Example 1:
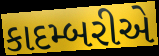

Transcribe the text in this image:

કાદમ્બરીએ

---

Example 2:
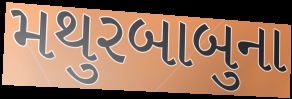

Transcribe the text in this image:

મથુરબાબુના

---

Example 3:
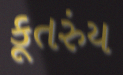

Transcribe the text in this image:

કૂતરુંય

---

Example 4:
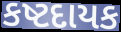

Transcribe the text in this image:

કષ્ટદાયક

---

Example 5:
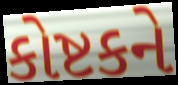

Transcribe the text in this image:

કોષ્ટકને